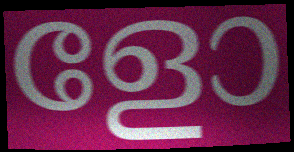
ളോ